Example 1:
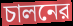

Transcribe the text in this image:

চালনের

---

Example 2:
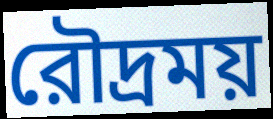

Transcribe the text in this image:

রৌদ্রময়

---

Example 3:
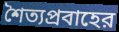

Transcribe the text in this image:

শৈত্যপ্রবাহের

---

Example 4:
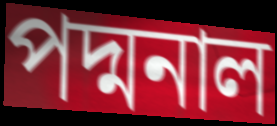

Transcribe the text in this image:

পদ্মনাল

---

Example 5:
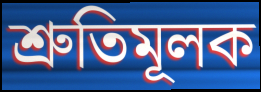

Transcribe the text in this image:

শ্রুতিমূলক